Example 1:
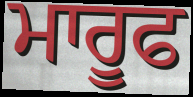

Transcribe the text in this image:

ਮਾਰੂਫ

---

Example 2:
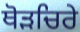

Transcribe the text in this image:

ਥੋੜਚਿਰੇ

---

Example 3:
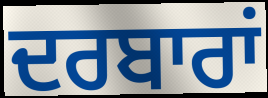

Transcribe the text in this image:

ਦਰਬਾਰਾਂ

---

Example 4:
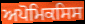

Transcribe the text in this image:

ਅਪੋਮਿਕਸਿਸ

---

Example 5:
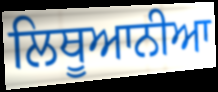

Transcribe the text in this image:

ਲਿਥੂਆਨੀਆ